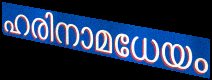
ഹരിനാമധേയം